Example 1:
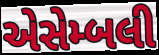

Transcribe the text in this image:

એસેમ્બલી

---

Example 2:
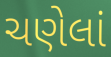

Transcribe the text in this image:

ચણેલાં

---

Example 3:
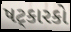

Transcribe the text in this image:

ષટ્કારકો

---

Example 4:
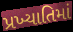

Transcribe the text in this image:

પ્રખ્યાતિમાં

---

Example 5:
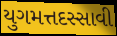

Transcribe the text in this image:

યુગમત્તદસ્સાવી